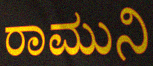
ರಾಮುನಿ